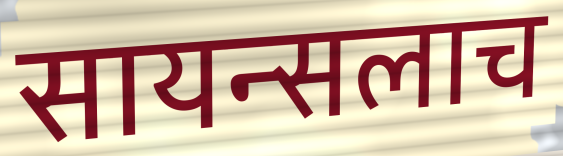
सायन्सलाच